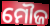
ମୌଜ